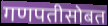
गणपतीसोबत